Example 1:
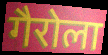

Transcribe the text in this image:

गैरोला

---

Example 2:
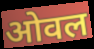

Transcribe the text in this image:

ओवल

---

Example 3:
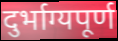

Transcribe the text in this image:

दुर्भाग्यपूर्ण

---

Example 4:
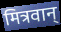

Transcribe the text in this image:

मित्रवान्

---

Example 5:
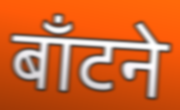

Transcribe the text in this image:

बाँटने